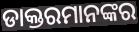
ଡାକ୍ତରମାନଙ୍କର